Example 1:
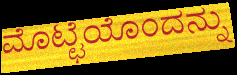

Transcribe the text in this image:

ಮೊಟ್ಟೆಯೊಂದನ್ನು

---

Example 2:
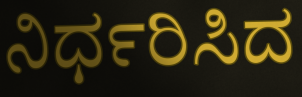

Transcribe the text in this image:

ನಿರ್ಧರಿಸಿದ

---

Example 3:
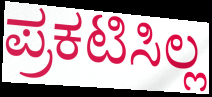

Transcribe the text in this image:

ಪ್ರಕಟಿಸಿಲ್ಲ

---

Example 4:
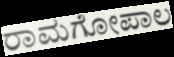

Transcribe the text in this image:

ರಾಮಗೋಪಾಲ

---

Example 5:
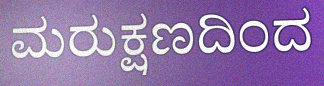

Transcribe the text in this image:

ಮರುಕ್ಷಣದಿಂದ